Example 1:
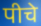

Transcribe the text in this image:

पीचे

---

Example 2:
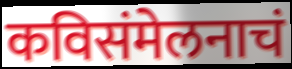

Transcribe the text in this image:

कविसंमेलनाचं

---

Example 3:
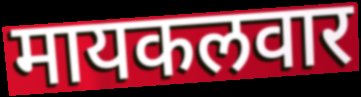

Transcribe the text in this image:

मायकलवार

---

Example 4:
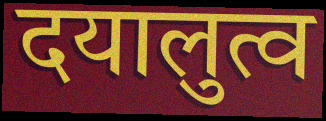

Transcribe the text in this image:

दयालुत्व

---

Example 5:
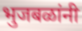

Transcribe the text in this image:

भुजबळांनी